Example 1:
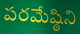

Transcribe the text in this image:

పరమేష్ఠిని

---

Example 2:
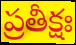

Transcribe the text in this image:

ప్రతీక్షః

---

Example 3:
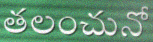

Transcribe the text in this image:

తలంచునో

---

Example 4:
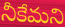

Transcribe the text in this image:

నీకేమని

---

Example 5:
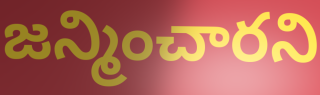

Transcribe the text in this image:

జన్మించారని